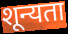
शून्‍यता